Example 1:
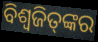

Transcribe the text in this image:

ବିଶ୍ଵଜିତ୍‌ଙ୍କର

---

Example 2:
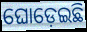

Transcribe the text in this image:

ଘୋଡ଼େଇଛି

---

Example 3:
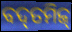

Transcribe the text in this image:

ବଦ୍‌ତମିଜ୍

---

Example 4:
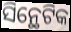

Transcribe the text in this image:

ସିନ୍ଥେଟିକ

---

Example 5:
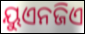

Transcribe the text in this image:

ୟୁଏନଜିଏ